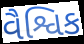
વૈશ્વિક